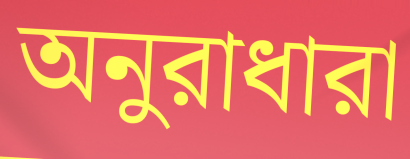
অনুরাধারা